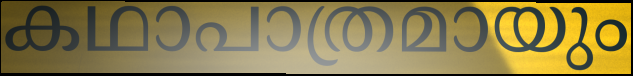
കഥാപാത്രമായും